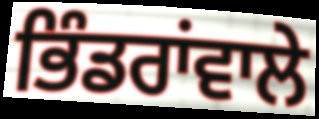
ਭਿੰਡਰਾਂਵਾਲੇ